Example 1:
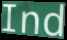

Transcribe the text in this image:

Ind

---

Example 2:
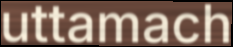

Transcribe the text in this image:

uttamach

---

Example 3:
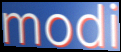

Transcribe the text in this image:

modi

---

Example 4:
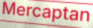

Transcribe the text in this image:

Mercaptan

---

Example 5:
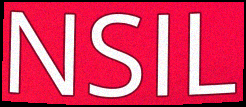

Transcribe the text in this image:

NSIL